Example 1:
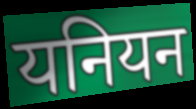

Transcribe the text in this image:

यनियन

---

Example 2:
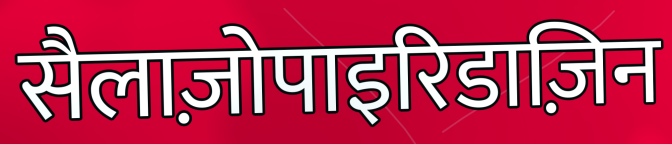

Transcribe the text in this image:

सैलाज़ोपाइरिडाज़िन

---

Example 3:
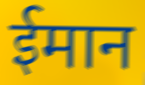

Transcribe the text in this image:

ईमान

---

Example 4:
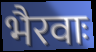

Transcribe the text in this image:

भैरवाः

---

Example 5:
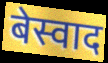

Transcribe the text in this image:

बेस्वाद